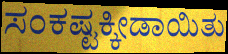
ಸಂಕಷ್ಟಕ್ಕೀಡಾಯಿತು